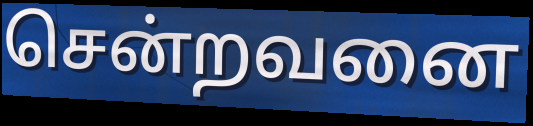
சென்றவனை